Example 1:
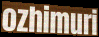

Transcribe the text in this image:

ozhimuri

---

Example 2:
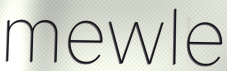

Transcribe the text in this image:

mewle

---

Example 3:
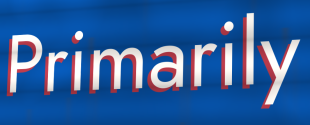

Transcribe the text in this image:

Primarily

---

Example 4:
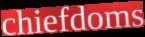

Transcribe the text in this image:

chiefdoms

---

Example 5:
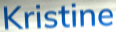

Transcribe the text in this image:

Kristine